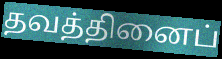
தவத்தினைப்